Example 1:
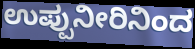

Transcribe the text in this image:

ಉಪ್ಪುನೀರಿನಿಂದ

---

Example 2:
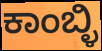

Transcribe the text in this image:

ಕಾಂಬ್ಳಿ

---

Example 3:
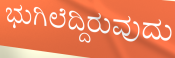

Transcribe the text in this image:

ಭುಗಿಲೆದ್ದಿರುವುದು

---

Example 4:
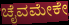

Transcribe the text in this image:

ಚೈವಮೇಕೇ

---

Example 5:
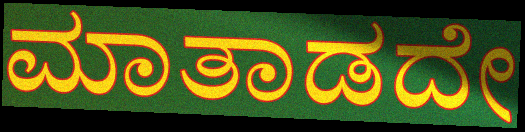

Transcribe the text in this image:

ಮಾತಾಡದೇ